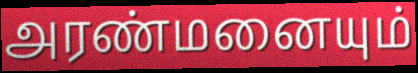
அரண்மனையும்